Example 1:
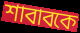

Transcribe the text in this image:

শাবাবকে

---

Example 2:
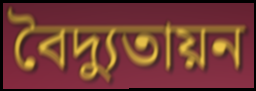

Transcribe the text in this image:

বৈদ্যুতায়ন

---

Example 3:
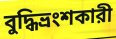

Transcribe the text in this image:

বুদ্ধিভ্রংশকারী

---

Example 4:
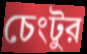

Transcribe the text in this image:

চেংটুর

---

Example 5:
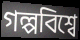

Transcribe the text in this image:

গল্পবিশ্বে